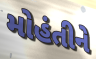
મોહંતીને